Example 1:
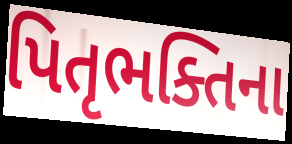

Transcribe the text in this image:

પિતૃભક્તિના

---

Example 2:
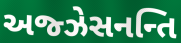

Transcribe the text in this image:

અજ્ઝેસનન્તિ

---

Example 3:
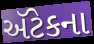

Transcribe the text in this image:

ઍટેકના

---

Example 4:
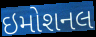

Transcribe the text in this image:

ઇમોશનલ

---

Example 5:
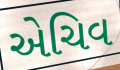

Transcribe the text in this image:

એચિવ